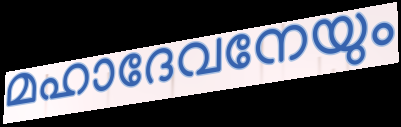
മഹാദേവനേയും